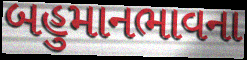
બહુમાનભાવના